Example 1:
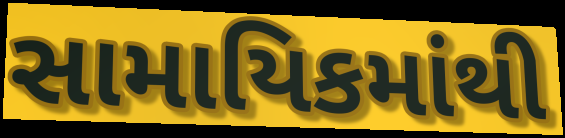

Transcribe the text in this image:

સામાયિકમાંથી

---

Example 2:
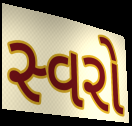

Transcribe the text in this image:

સ્વરો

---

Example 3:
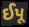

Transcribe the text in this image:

ઈપૂ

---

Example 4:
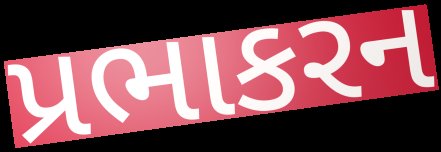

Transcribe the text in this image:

પ્રભાકરન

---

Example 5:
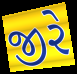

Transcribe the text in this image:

જીરે